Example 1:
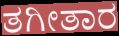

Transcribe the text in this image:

ತಗೀತಾರ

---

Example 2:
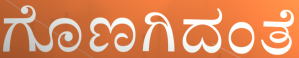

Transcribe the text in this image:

ಗೊಣಗಿದಂತೆ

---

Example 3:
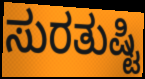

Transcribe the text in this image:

ಸುರತುಷ್ಟಿ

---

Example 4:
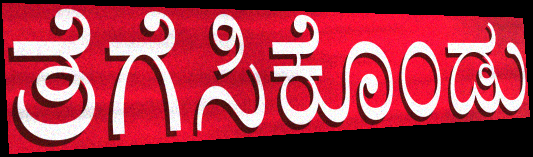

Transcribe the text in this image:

ತೆಗೆಸಿಕೊಂಡು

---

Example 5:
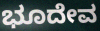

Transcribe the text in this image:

ಭೂದೇವ